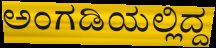
ಅಂಗಡಿಯಲ್ಲಿದ್ದ